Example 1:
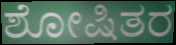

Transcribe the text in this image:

ಶೋಷಿತರ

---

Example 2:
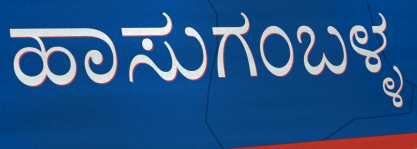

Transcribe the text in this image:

ಹಾಸುಗಂಬಳ್ಳ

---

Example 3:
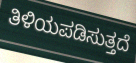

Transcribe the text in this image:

ತಿಳಿಯಪಡಿಸುತ್ತದೆ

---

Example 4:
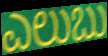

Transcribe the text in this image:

ಎಲುಬು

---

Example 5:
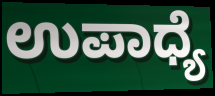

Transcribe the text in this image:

ಉಪಾಧ್ಯೆ